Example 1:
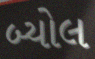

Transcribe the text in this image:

બ્યોલ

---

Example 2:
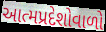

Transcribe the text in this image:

આત્મપ્રદેશોવાળો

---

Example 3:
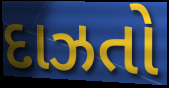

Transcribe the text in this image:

દાઝતો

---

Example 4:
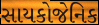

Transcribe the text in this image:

સાયકોજેનિક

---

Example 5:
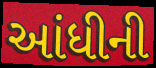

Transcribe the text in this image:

આંધીની